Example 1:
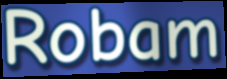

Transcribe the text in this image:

Robam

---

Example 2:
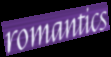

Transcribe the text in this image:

romantics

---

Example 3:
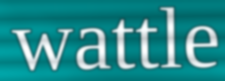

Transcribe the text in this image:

wattle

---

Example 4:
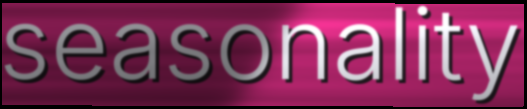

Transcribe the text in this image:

seasonality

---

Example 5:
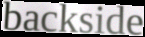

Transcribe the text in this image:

backside